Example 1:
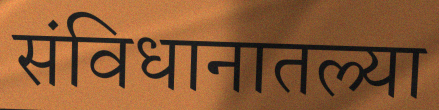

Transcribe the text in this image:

संविधानातल्या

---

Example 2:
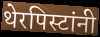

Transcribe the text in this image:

थेरपिस्टांनी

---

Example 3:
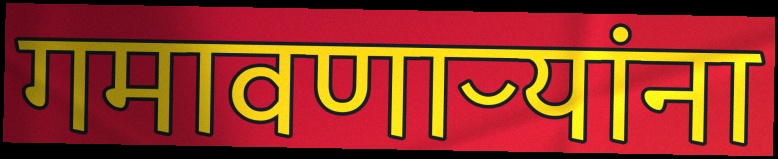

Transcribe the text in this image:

गमावणाऱ्यांना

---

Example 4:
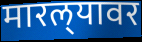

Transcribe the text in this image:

मारल्यावर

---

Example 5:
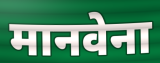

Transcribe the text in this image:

मानवेना